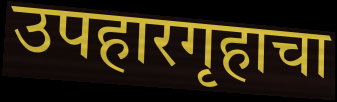
उपहारगृहाचा